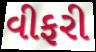
વીફરી